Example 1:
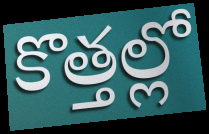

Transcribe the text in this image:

కొత్తల్లో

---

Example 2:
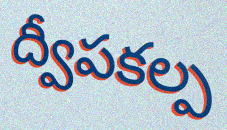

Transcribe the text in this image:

ద్వీపకల్ప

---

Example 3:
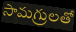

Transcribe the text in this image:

సామగ్రులతో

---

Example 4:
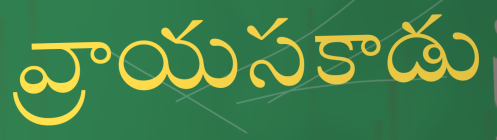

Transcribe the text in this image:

వ్రాయసకాడు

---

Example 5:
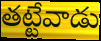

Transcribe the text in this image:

తట్టేవాడు